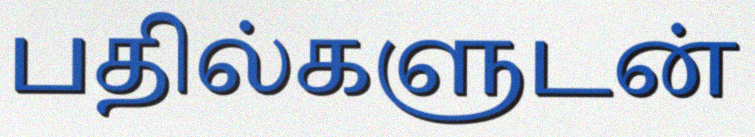
பதில்களுடன்